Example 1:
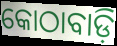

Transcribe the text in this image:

କୋଠାବାଡ଼ି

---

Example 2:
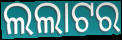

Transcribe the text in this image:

ଲଲାଟର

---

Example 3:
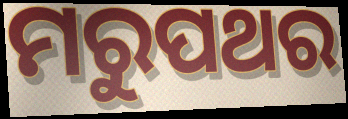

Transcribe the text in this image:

ମରୁପଥର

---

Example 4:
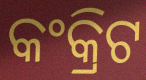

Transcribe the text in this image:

କଂକ୍ରିଟ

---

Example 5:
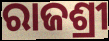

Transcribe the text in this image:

ରାଜଶ୍ରୀ